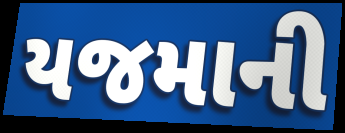
યજમાની